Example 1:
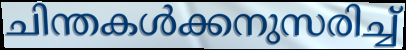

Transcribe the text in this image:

ചിന്തകൾക്കനുസരിച്ച്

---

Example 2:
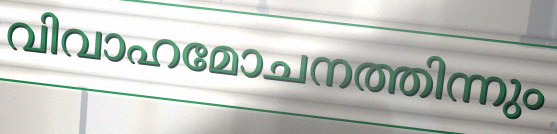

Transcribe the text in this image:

വിവാഹമോചനത്തിന്നും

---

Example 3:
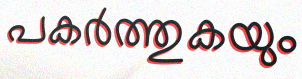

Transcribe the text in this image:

പകർത്തുകയും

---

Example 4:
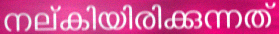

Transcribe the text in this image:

നല്‌കിയിരിക്കുന്നത്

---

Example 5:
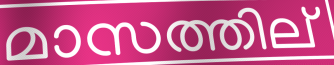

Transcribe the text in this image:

മാസത്തില്